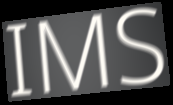
IMS